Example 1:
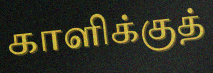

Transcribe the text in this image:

காளிக்குத்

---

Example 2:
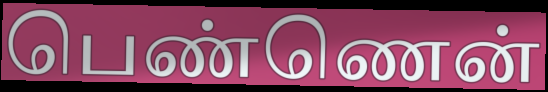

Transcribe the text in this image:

பெண்ணென்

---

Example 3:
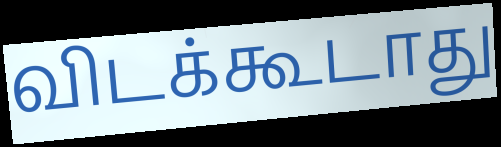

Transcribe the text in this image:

விடக்கூடாது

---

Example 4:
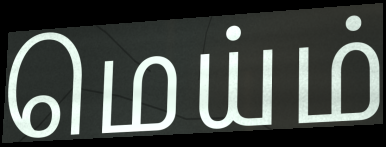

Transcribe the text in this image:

மெய்ம்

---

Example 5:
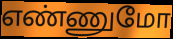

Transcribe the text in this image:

எண்ணுமோ